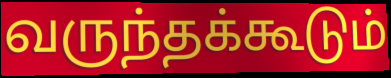
வருந்தக்கூடும்